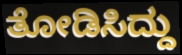
ತೋಡಿಸಿದ್ದು